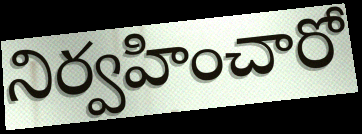
నిర్వహించారో